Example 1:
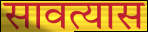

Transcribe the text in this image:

सावत्यास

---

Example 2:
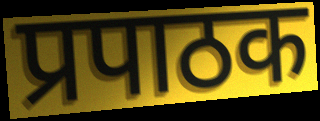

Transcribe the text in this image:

प्रपाठक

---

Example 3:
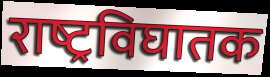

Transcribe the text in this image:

राष्ट्रविघातक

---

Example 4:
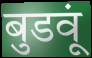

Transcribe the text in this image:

बुडवूं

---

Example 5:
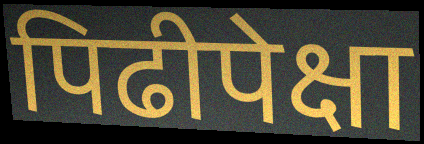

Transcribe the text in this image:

पिढीपेक्षा